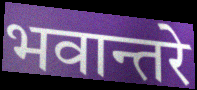
भवान्तरे